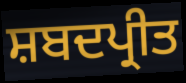
ਸ਼ਬਦਪ੍ਰੀਤ